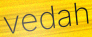
vedah